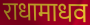
राधामाधव